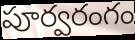
పూర్వరంగం